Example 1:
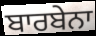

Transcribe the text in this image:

ਬਾਰਬੇਨਾ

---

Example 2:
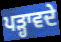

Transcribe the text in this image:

ਪੜ੍ਹਾਵਦੇ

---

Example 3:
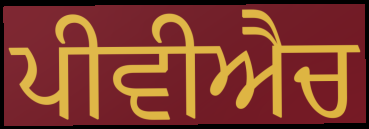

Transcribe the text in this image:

ਪੀਵੀਐਚ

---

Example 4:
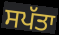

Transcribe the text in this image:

ਸਪੱਤਾ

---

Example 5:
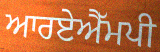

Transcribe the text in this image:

ਆਰਏਐੱਮਪੀ